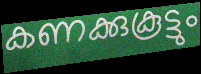
കണക്കുകൂട്ടും